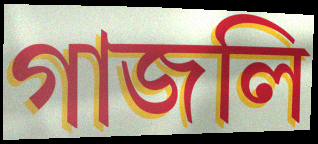
গাজলি